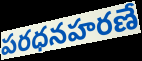
పరధనహరణే